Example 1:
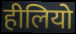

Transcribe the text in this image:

हीलियो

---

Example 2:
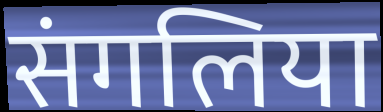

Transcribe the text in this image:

संगलिया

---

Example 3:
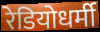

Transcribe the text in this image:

रेडियोधर्मी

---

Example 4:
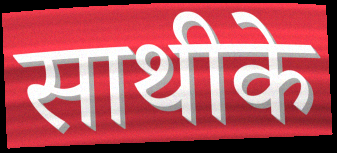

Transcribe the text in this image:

साथीके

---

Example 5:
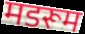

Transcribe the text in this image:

मडरूम